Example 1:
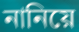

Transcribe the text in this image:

নানিয়ে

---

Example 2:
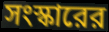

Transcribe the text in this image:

সংস্কারের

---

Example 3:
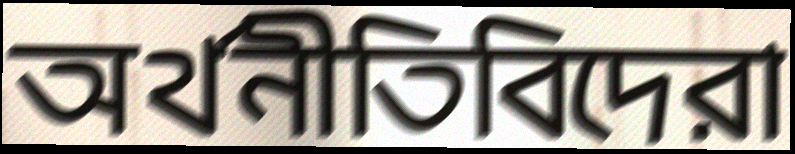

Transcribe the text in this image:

অর্থনীতিবিদেরা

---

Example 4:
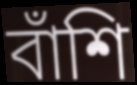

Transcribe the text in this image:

বাঁশি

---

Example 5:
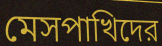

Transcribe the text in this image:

মেসপাখিদের